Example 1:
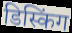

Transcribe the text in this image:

डिस्किंग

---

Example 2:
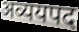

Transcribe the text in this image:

अव्ययपद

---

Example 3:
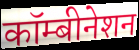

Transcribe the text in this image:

कॉम्बीनेशन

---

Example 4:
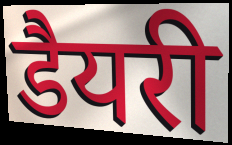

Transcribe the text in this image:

डैयरी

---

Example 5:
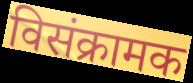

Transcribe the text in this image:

विसंक्रामक